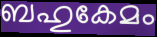
ബഹുകേമം